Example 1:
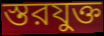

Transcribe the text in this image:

স্তরযুক্ত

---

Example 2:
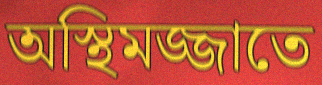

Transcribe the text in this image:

অস্থিমজ্জাতে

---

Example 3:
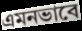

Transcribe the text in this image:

এমনভাবে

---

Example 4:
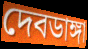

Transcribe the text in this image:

দেবডাঙ্গা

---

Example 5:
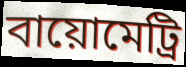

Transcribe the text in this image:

বায়োমেট্রি